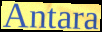
Antara